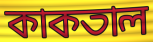
কাকতাল